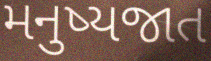
મનુષ્યજાત